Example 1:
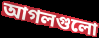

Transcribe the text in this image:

আগলগুলো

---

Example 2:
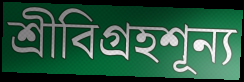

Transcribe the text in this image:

শ্রীবিগ্রহশূন্য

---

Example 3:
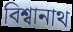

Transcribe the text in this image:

বিশ্বানাথ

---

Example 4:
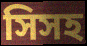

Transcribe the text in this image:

সিসহ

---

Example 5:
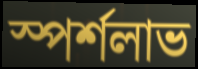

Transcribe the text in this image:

স্পর্শলাভ